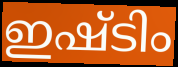
ഇഷ്ടിം